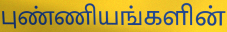
புண்ணியங்களின்